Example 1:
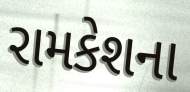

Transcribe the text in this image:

રામકેશના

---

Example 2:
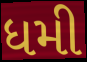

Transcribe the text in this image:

ધમી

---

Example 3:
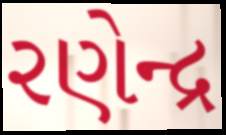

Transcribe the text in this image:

રણેન્દ્ર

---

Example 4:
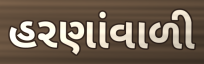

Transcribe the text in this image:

હરણાંવાળી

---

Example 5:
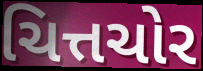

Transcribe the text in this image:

ચિત્તચોર